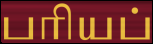
பரியப்